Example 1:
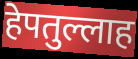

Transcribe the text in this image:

हेपतुल्लाह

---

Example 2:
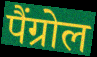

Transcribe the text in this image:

पैंग्रोल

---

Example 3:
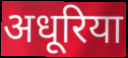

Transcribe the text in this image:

अधूरिया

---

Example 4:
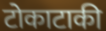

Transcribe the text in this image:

टोकाटाकी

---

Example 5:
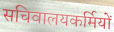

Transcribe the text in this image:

सचिवालयकर्मियों